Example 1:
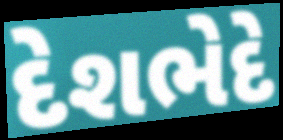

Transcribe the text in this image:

દેશભેદે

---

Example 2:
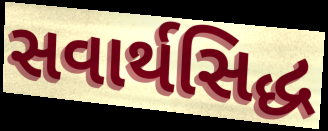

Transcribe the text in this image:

સવાર્થસિદ્ધ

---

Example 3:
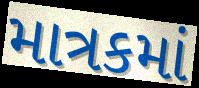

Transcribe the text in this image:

માત્રકમાં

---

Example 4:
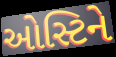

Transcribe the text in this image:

ઓસ્ટિને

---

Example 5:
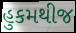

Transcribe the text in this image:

હુકમથીજ